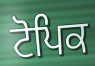
ਟੋਪਿਕ